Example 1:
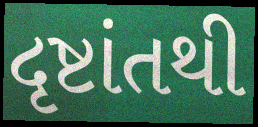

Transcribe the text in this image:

દૃષ્ટાંતથી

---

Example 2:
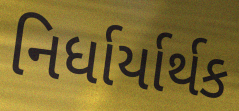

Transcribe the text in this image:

નિર્ધાર્યાર્થક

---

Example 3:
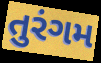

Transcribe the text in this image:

તુરંગમ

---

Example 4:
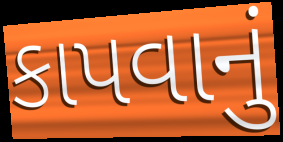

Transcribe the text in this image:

કાપવાનું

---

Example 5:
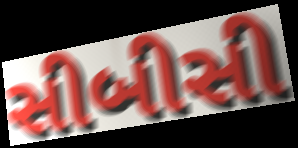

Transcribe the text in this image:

સીબીસી